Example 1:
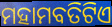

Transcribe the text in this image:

ମହାମବତିଟିଏ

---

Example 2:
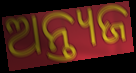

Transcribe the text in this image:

ଅନ୍ତ୍ୟଜ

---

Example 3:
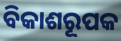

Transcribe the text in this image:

ବିକାଶରୂପକ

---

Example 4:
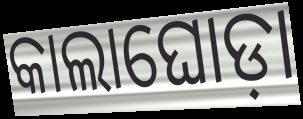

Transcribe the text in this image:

କାଲାଘୋଡ଼ା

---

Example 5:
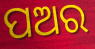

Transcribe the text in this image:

ପଅର